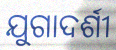
ଯୁଗାଦର୍ଶୀ